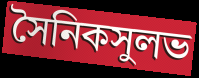
সৈনিকসুলভ